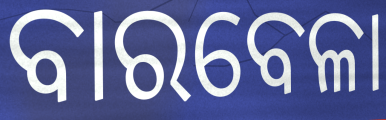
ବାରବେଳା